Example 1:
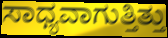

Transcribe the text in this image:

ಸಾಧ್ಯವಾಗುತ್ತಿತ್ತು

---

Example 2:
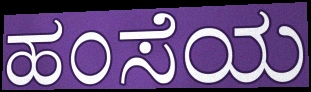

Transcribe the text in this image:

ಹಂಸೆಯ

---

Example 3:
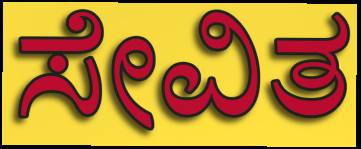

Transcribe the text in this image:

ಸೇವಿತ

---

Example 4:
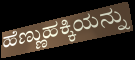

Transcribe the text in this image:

ಹೆಣ್ಣುಹಕ್ಕಿಯನ್ನು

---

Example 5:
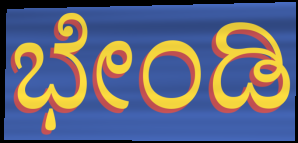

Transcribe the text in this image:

ಭೇಂಡಿ